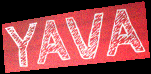
YAVA